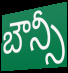
బౌన్సీ